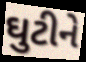
ઘુટીને